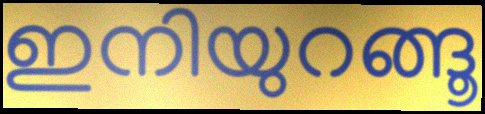
ഇനിയുറങ്ങൂ